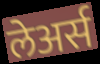
लेअर्स